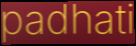
padhati